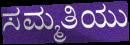
ಸಮ್ಮತಿಯು